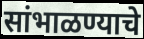
सांभाळण्याचे